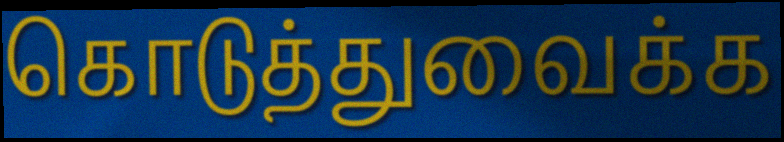
கொடுத்துவைக்க